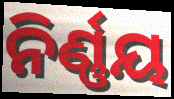
ନିର୍ଣ୍ଣୟ